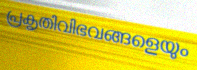
പ്രകൃതിവിഭവങ്ങളെയും